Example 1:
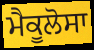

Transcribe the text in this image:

ਮੈਕੂਲੋਸਾ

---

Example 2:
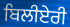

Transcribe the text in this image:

ਬਿਲੀਏਰੀ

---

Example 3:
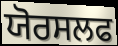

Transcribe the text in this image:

ਯੋਰਸਲਫ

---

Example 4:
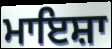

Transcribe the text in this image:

ਮਾਇਸ਼ਾ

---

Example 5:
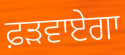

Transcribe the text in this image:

ਫ਼ੜਵਾਏਗਾ